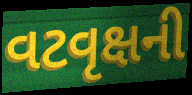
વટવૃક્ષની